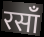
रसाँ